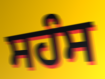
ਸਹੰਸ